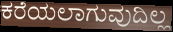
ಕರೆಯಲಾಗುವುದಿಲ್ಲ